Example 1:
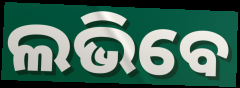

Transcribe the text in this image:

ଲଭିବେ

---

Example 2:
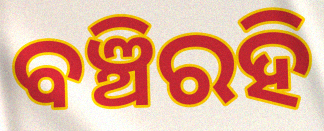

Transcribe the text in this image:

ବଞ୍ଚିରହି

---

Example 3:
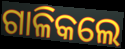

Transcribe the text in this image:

ଗାଳିକଲେ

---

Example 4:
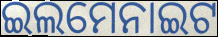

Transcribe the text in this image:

ଇଲମେନାଇଟ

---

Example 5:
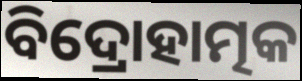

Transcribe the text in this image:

ବିଦ୍ରୋହାତ୍ମକ